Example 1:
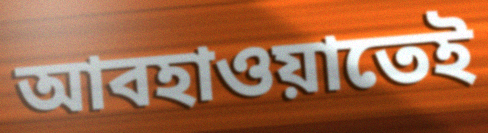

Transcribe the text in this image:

আবহাওয়াতেই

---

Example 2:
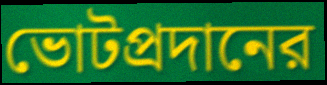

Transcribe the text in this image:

ভোটপ্রদানের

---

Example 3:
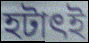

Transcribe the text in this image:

হটাৎই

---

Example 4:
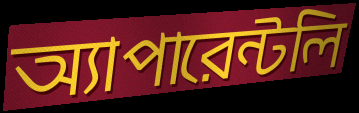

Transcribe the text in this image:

অ্যাপারেন্টলি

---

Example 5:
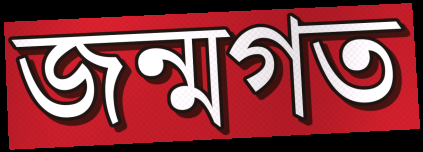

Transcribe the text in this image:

জন্মগত